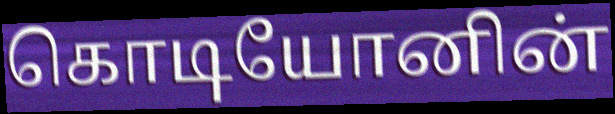
கொடியோனின்